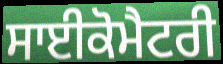
ਸਾਈਕੋਮੈਟਰੀ